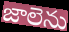
జాలెను